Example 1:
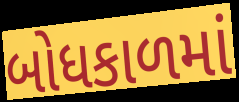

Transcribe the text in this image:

બોધકાળમાં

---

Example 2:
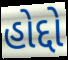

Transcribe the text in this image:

હોદ્દો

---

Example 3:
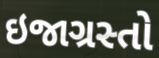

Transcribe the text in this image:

ઇજાગ્રસ્તો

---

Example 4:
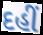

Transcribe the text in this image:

દહીં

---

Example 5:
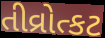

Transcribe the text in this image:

તીવ્રોત્કટ